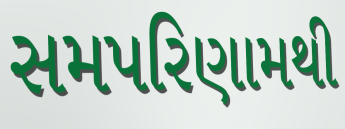
સમપરિણામથી